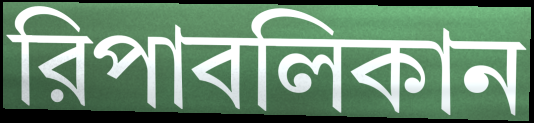
রিপাবলিকান